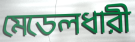
মেডেলধারী